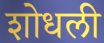
शोधली